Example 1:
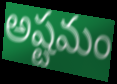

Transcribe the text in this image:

అష్టమం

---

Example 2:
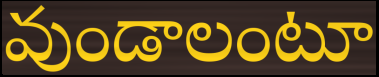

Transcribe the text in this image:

వుండాలంటూ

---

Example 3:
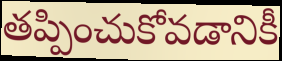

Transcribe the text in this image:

తప్పించుకోవడానికీ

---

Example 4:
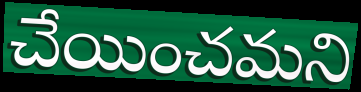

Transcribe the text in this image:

చేయించమని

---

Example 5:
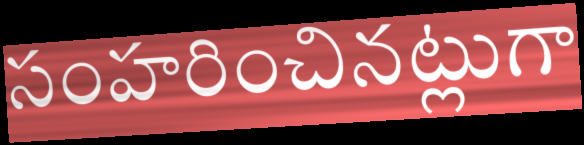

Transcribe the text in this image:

సంహరించినట్లుగా